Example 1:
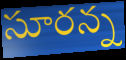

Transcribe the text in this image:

సూరన్న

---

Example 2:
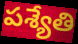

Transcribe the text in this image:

పశ్యేతి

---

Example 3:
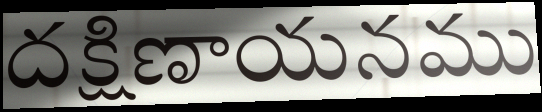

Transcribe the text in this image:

దక్షిణాయనము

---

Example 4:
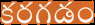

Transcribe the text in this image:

కరగడం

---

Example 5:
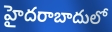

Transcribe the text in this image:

హైదరాబాదులో